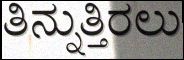
ತಿನ್ನುತ್ತಿರಲು